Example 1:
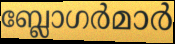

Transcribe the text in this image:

ബ്ലോഗർമാർ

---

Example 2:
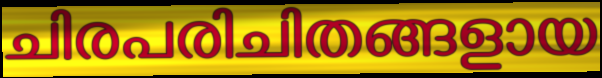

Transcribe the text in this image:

ചിരപരിചിതങ്ങളായ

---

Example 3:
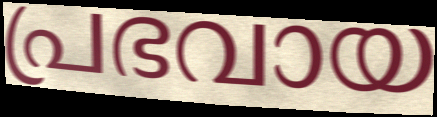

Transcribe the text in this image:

പ്രഭവായ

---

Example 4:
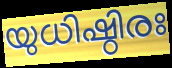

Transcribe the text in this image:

യുധിഷ്ഠിരഃ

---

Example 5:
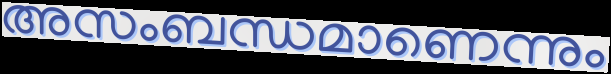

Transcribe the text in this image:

അസംബന്ധമാണെന്നും